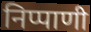
निप्पाणी